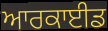
ਆਰਕਾਈਡ